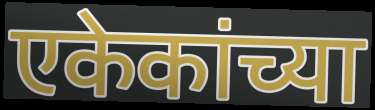
एकेकांच्या